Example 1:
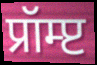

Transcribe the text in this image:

प्रॉम्प्ट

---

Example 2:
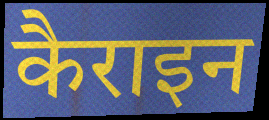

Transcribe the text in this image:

कैराइन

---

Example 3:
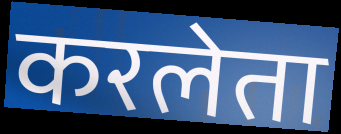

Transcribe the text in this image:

करलेता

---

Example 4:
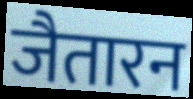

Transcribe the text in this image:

जैतारन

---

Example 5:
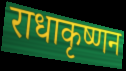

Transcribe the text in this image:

राधाकृष्णन